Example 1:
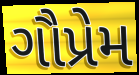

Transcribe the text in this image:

ગૌપ્રેમ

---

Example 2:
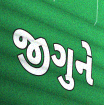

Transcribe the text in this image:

જીગુને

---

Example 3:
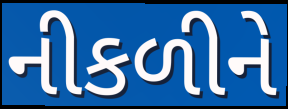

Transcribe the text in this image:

નીકળીને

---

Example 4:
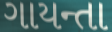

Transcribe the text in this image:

ગાયન્તા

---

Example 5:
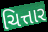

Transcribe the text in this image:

ચિત્તાર